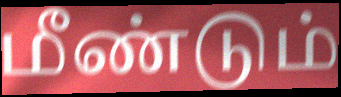
மீண்டும்